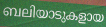
ബലിയാടുകളായ